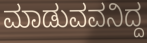
ಮಾಡುವವನಿದ್ದ